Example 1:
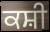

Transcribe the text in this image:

ਕਸ਼ੀ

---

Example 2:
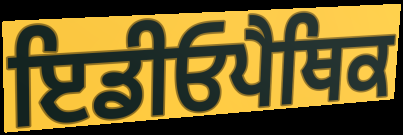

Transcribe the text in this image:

ਇਡੀਓਪੈਥਿਕ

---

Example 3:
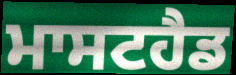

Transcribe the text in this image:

ਮਾਸਟਹੈਡ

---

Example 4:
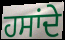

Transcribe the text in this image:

ਹਸਾਂਦੇ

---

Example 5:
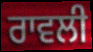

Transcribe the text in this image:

ਰਾਵਲੀ